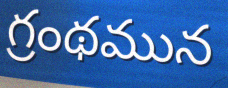
గ్రంథమున